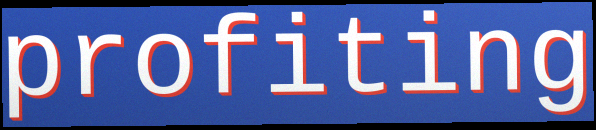
profiting